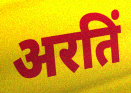
अरतिं